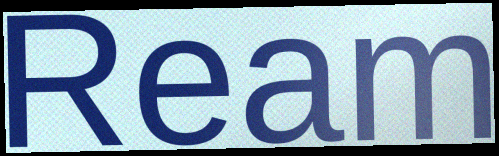
Ream